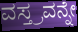
ವಸ್ತ್ರವನ್ನೇ